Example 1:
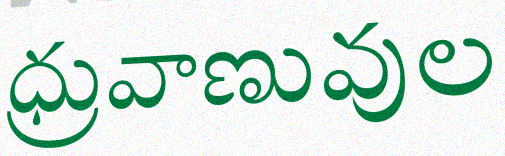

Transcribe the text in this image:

ధ్రువాణువుల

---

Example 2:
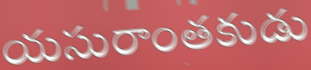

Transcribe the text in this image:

యసురాంతకుడు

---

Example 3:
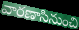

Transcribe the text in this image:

వారణాసినుంచి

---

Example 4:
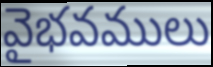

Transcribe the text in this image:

వైభవములు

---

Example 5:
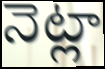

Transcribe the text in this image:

నెట్లా